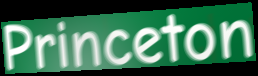
Princeton